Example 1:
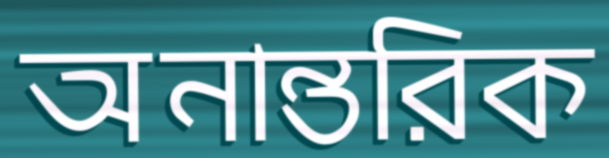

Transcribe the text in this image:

অনান্তরিক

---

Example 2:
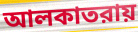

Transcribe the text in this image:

আলকাতরায়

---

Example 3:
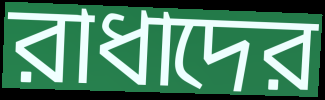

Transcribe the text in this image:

রাধাদের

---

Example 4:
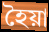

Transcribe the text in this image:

হৈয়া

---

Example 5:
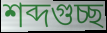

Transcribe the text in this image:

শব্দগুচ্ছ